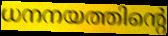
ധനനയത്തിന്റെ